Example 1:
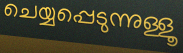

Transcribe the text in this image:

ചെയ്യപ്പെടുന്നുള്ളൂ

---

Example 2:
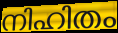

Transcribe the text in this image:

നിഹിതം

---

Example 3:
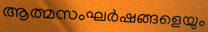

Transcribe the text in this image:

ആത്മസംഘർഷങ്ങളെയും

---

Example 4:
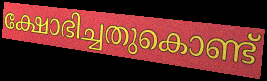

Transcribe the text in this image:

ക്ഷോഭിച്ചതുകൊണ്ട്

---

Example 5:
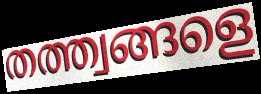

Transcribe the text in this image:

തത്ത്വങ്ങളെ